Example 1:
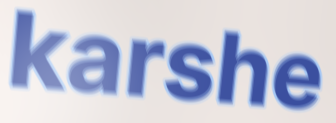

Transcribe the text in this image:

karshe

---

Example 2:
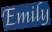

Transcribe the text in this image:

Emily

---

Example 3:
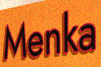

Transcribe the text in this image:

Menka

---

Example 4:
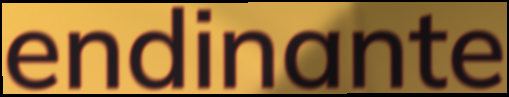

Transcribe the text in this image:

endinante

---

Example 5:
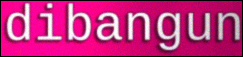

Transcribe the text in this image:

dibangun